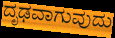
ದೃಢವಾಗುವುದು